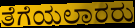
ತೆಗೆಯಲಾರರು